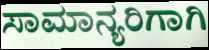
ಸಾಮಾನ್ಯರಿಗಾಗಿ